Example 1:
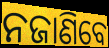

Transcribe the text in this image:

ନଜାଣିବେ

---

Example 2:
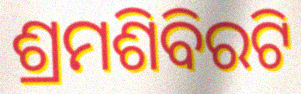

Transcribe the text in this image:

ଶ୍ରମଶିବିରଟି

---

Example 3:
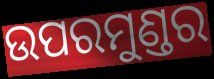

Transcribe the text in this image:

ଉପରମୁଣ୍ଡର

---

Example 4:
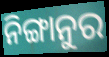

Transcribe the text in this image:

ନିଙ୍ଗାନୁର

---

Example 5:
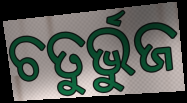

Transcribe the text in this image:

ଚତୁର୍ଭୁଜ